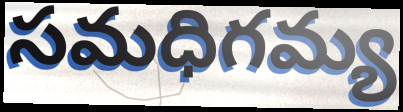
సమధిగమ్య